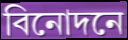
বিনোদনে